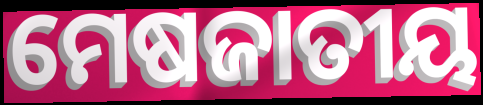
ମେଷଜାତୀୟ